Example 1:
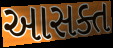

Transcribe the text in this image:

આસક્ત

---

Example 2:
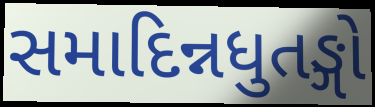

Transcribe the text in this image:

સમાદિન્નધુતઙ્ગો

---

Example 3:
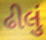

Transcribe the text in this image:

ઢીલું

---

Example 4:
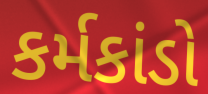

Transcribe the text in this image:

કર્મકાંડો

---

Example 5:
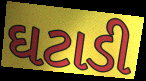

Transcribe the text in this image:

ઘટાડી